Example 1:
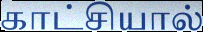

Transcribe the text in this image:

காட்சியால்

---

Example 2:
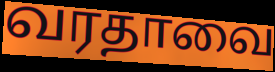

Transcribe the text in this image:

வரதாவை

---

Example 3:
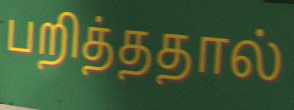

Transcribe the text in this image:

பறித்ததால்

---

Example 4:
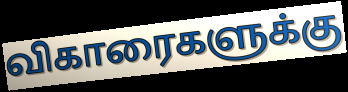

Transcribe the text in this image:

விகாரைகளுக்கு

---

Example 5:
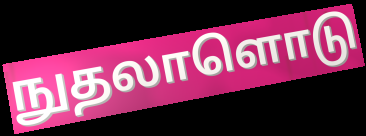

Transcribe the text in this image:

நுதலாளொடு